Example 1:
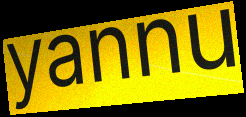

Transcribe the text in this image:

yannu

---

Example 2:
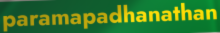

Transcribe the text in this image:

paramapadhanathan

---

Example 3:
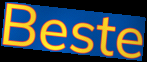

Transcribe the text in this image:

Beste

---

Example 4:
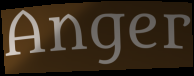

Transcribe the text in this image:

Anger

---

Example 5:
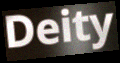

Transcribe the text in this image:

Deity